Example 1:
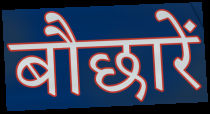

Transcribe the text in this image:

बौछारें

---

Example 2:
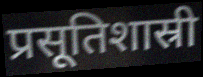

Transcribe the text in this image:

प्रसूतिशास्री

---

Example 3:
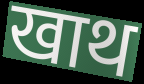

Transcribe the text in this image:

खाथ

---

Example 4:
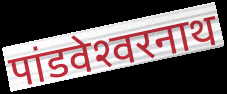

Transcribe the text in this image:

पांडवेश्वरनाथ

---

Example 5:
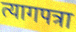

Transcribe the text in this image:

त्यागपत्रा